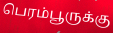
பெரம்பூருக்கு